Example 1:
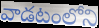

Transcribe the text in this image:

వాడటంలోని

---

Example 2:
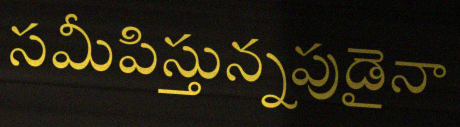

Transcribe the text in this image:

సమీపిస్తున్నపుడైనా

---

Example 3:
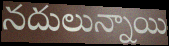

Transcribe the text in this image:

నదులున్నాయి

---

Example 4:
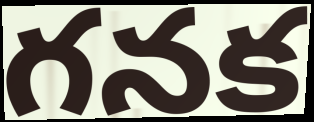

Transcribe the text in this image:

గనక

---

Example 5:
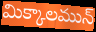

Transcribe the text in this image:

మిక్కాలమున్